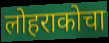
लोहराकोचा